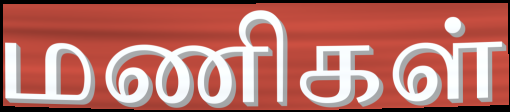
மணிகள்